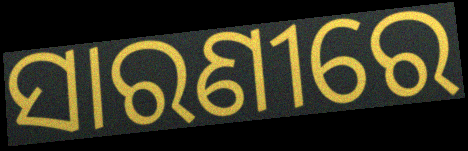
ସାରଣୀରେ